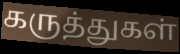
கருத்துகள்